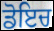
ਡੋਇਚ